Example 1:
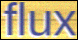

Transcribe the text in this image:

flux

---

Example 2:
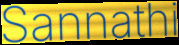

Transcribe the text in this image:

Sannathi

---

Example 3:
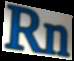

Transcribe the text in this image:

Rn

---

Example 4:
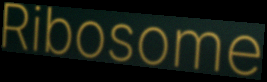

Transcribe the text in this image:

Ribosome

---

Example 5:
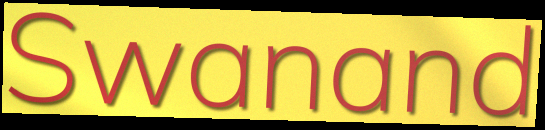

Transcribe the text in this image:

Swanand